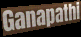
Ganapathi